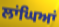
ਲਾਂਘਿਆਂ